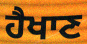
ਹੈਖਾਣ